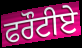
ਫਰੌਟੀਏ